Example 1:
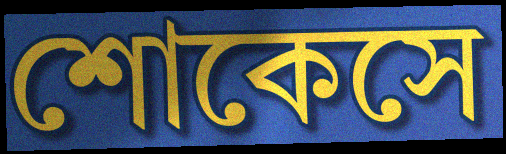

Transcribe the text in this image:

শোকেসে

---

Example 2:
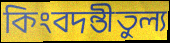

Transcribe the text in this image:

কিংবদন্তীতুল্য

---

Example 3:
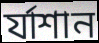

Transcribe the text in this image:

র্যাশান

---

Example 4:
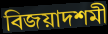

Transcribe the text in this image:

বিজয়াদশমী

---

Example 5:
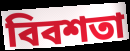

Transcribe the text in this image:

বিবশতা